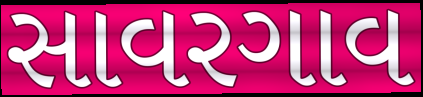
સાવરગાવ